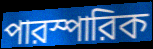
পারস্পারিক